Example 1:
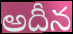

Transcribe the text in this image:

అదీన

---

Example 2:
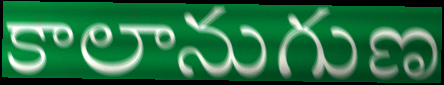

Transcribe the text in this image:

కాలానుగుణ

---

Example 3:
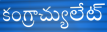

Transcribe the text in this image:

కంగ్రాచ్యులేట్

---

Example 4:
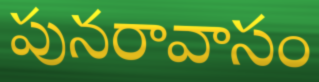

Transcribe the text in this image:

పునరావాసం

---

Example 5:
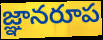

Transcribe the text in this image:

జ్ఞానరూప